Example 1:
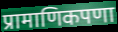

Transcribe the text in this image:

प्रामाणिकपणा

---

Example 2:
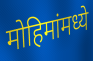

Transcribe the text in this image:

मोहिमांमध्ये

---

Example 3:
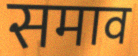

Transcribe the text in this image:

समाव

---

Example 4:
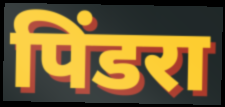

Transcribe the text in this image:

पिंडरा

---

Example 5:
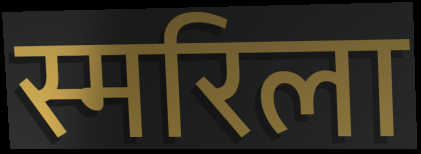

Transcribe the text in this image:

स्मरिला